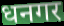
धनगर